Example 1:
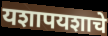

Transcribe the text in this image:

यशापयशाचे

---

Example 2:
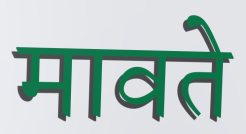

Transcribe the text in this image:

मावते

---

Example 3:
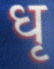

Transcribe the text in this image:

धृ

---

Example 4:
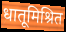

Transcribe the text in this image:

धातूमिश्रित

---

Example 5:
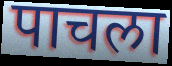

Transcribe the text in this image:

पाचला